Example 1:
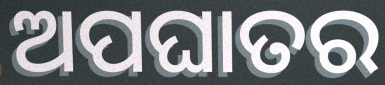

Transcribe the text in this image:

ଅପଘାତର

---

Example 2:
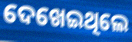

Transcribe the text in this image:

ଦେଖେଇଥିଲେ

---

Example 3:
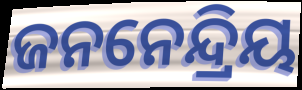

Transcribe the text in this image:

ଜନନେନ୍ଦ୍ରିୟ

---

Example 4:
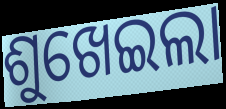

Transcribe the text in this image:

ଶୁଖେଇଲା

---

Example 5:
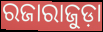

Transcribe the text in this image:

ରଜାରାଜୁଡ଼ା